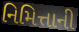
નિમિત્તાની